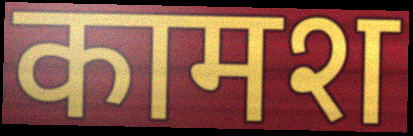
कामश